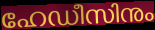
ഹേഡീസിനും